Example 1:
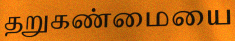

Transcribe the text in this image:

தறுகண்மையை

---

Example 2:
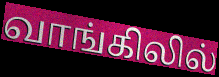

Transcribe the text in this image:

வாங்கிலில்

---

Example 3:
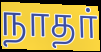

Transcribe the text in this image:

நாதர்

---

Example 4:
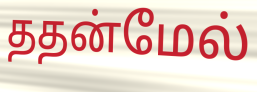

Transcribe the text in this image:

ததன்மேல்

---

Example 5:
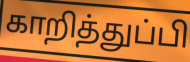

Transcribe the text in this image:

காறித்துப்பி